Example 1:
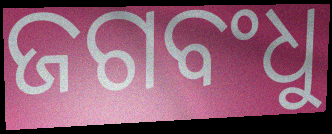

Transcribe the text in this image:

ଜଗବଂଧୁ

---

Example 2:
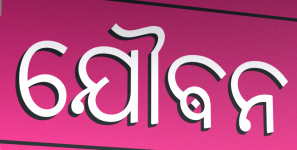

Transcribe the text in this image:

ଯୌଵନ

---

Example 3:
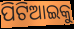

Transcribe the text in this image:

ପିଟିଆଇକୁ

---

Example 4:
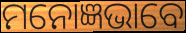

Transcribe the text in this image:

ମନୋଜ୍ଞଭାବେ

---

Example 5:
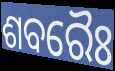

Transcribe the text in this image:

ଶବରୈଃ